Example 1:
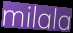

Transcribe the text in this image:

milala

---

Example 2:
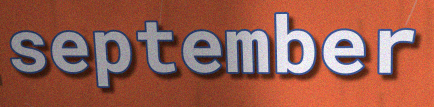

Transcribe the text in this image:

september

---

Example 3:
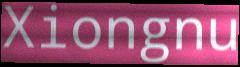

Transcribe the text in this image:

Xiongnu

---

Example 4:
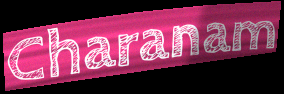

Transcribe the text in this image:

Charanam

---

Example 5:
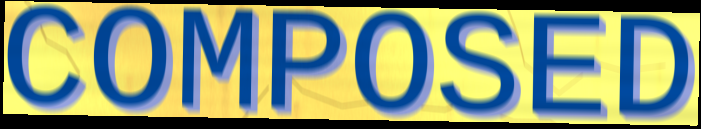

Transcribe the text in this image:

COMPOSED